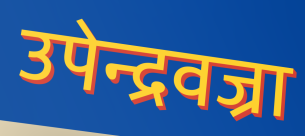
उपेन्द्रवज्रा